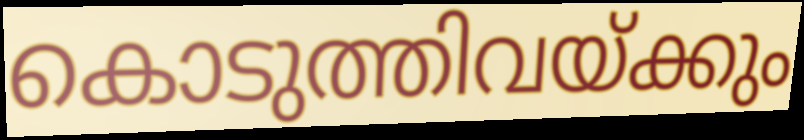
കൊടുത്തിവയ്ക്കും